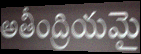
అతీంద్రియమై